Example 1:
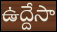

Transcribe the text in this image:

ఉద్దేసా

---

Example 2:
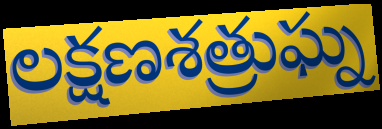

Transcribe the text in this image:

లక్షణశత్రుఘ్న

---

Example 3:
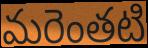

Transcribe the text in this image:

మరెంతటి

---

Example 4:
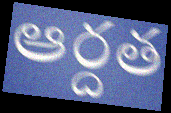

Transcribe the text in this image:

ఆర్దత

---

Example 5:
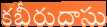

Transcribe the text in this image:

కబీరుదాసు